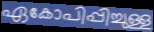
ഏകോപിപ്പിച്ചുള്ള